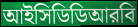
আইসিডিডিআরবি